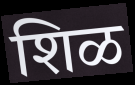
शिळ